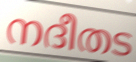
നദീതട